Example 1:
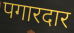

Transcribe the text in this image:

पगारदार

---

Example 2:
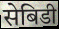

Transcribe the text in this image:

सेबिडी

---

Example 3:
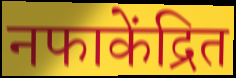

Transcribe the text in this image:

नफाकेंद्रित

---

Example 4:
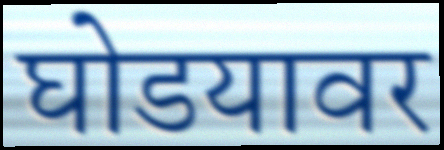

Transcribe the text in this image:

घोडयावर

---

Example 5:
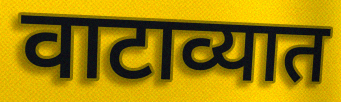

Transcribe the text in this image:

वाटाव्यात